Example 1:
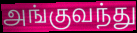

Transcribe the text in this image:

அங்குவந்து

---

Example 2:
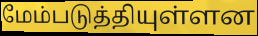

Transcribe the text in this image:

மேம்படுத்தியுள்ளன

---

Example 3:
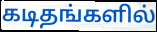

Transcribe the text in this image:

கடிதங்களில்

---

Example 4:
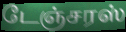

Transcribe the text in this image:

டேஞ்சரஸ்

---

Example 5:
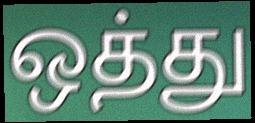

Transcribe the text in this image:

ஒத்து